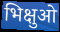
भिक्षुओ